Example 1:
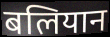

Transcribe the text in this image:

बलियान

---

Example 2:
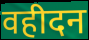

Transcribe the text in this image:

वहीदन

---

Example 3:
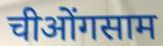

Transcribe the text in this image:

चीओंगसाम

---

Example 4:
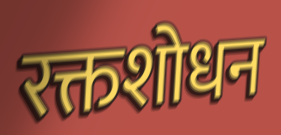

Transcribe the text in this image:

रक्तशोधन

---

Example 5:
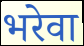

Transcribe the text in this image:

भरेवा